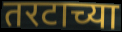
तरटाच्या